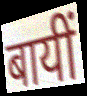
बायीं